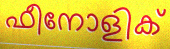
ഫീനോളിക്